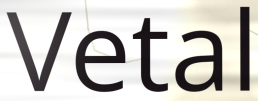
Vetal